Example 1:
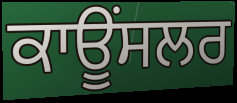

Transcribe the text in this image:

ਕਾਊਂਸਲਰ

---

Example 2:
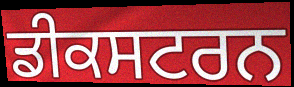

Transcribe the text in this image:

ਡੀਕਸਟਰਨ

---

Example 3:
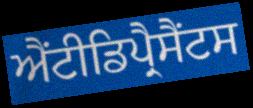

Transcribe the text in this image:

ਐਂਟੀਡਿਪ੍ਰੈਸੈਂਟਸ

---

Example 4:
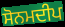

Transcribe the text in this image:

ਸੋਨਮਦੀਪ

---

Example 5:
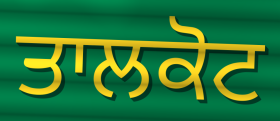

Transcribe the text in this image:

ਤਾਲਕੋਟ